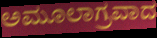
ಅಮೂಲಾಗ್ರವಾದ